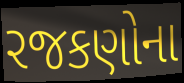
રજકણોના